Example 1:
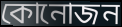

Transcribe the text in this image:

কোনোজন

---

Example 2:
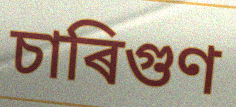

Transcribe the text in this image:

চাৰিগুণ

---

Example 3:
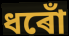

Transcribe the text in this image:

ধৰোঁ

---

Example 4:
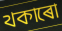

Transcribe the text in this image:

থকাৰো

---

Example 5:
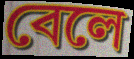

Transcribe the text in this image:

বেলে